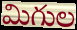
మిగుల